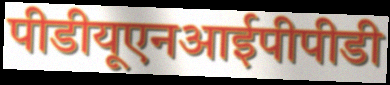
पीडीयूएनआईपीपीडी